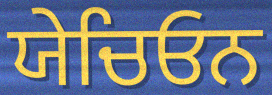
ਯੇਚਿਓਨ